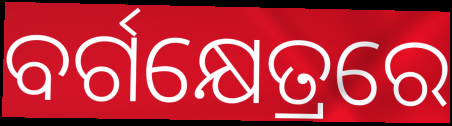
ବର୍ଗକ୍ଷେତ୍ରରେ